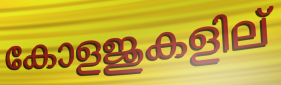
കോളജുകളില്